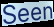
Seen